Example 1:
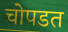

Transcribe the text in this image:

चोपडत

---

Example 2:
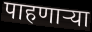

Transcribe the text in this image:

पाहणाऱ्या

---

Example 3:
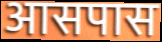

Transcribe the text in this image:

आसपास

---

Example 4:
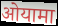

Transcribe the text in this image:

ओयामा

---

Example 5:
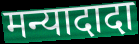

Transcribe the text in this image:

मन्यादादा